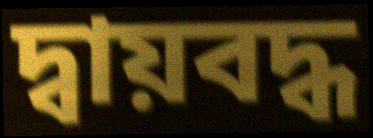
দ্বায়বদ্ধ